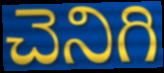
చెనిగి